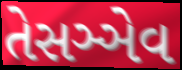
તેસઞ્ઞેવ